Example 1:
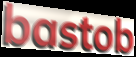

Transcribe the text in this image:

bastob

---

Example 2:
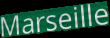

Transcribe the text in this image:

Marseille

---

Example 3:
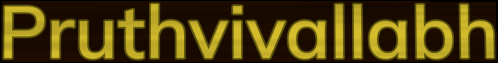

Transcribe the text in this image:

Pruthvivallabh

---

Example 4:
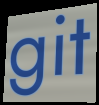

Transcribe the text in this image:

git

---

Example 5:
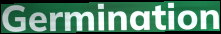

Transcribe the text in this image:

Germination